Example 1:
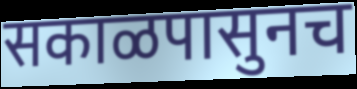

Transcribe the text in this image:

सकाळपासुनच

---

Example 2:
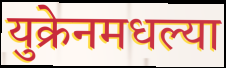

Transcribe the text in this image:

युक्रेनमधल्या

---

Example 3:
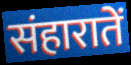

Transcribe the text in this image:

संहारातें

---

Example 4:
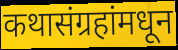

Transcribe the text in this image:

कथासंग्रहांमधून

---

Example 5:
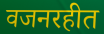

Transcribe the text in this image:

वजनरहीत